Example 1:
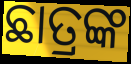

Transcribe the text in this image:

ଛାତ୍ରଙ୍କ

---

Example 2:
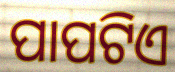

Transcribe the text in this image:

ପାପଟିଏ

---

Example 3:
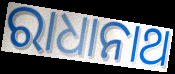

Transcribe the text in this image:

ରାଧାନାଥ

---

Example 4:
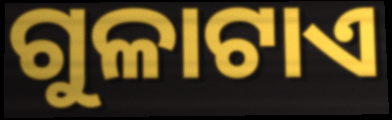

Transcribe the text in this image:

ଗୁଳାଟାଏ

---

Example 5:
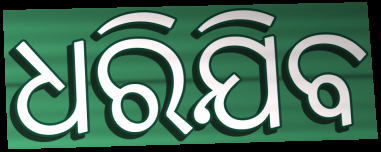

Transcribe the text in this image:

ଧରିଯିବ